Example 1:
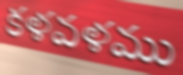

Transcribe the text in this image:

కళవళము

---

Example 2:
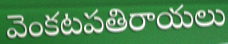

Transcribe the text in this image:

వెంకటపతిరాయలు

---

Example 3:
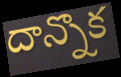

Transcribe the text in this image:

దాన్నొక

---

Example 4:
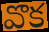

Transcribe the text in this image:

వొక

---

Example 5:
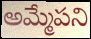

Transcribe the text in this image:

అమ్మేపని